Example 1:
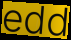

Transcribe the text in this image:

edd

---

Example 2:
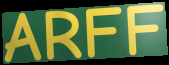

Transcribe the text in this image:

ARFF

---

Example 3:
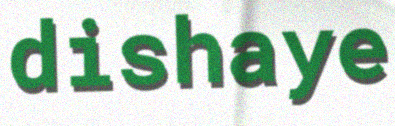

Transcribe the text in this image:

dishaye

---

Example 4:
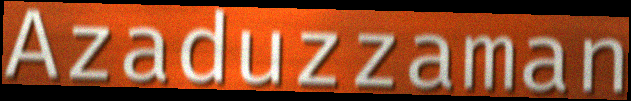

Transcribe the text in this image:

Azaduzzaman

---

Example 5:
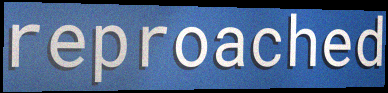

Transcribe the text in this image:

reproached